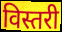
विस्तरी